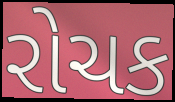
રોચક